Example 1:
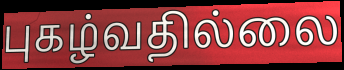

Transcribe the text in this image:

புகழ்வதில்லை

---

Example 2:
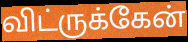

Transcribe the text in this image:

விட்ருக்கேன்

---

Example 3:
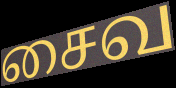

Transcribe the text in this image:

சைவ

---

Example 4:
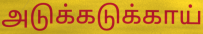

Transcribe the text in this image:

அடுக்கடுக்காய்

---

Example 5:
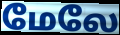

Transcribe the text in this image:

மேலே